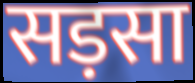
सड़सा